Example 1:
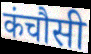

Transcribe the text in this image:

कंचौसी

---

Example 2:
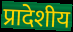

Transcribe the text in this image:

प्रादेशीय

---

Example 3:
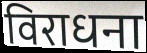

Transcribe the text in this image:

विराधना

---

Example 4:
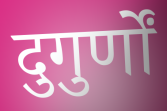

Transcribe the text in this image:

दुगुर्णों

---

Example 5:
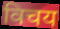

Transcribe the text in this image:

विचय